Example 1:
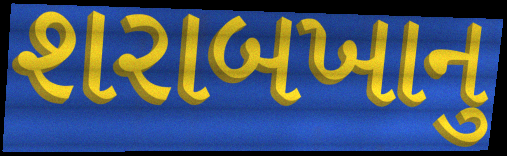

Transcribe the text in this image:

શરાબખાનુ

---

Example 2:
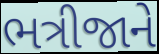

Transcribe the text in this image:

ભત્રીજાને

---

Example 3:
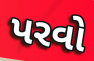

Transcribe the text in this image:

પરવો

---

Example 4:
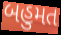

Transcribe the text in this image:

બહુમત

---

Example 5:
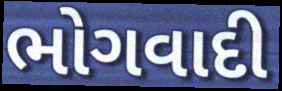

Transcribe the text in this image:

ભોગવાદી